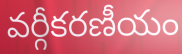
వర్గీకరణీయం